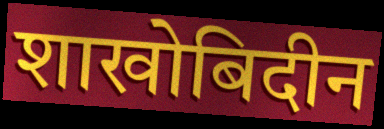
शाखोबिदीन